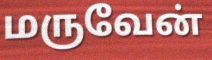
மருவேன்